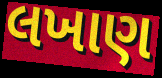
લખાણ